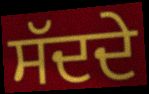
ਸੱਦਦੇ